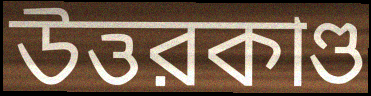
উত্তরকাণ্ড